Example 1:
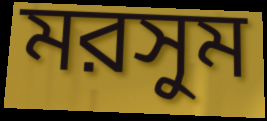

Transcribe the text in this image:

মরসুম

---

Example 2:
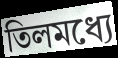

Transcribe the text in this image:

তিলমধ্যে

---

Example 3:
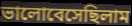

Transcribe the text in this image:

ভালোবেসেছিলাম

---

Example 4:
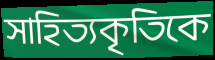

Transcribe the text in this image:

সাহিত্যকৃতিকে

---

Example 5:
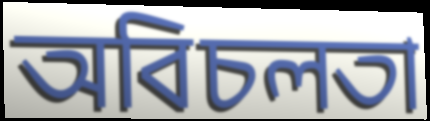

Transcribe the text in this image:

অবিচলতা